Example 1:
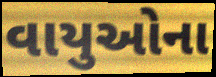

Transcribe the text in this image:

વાયુઓના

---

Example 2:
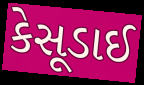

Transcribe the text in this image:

કેસૂડાઈ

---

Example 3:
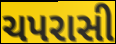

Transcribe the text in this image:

ચપરાસી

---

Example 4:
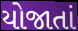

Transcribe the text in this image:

યોજાતાં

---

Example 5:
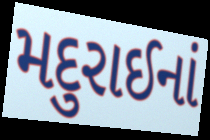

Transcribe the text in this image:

મદુરાઈનાં